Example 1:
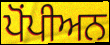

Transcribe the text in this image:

ਪੋਂਪੀਅਨ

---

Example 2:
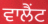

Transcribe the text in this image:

ਵਾਲੈਂਟ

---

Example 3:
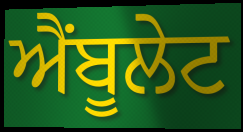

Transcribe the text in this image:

ਐਂਬੂਲੇਟ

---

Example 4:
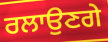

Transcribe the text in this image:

ਰਲਾਉਣਗੇ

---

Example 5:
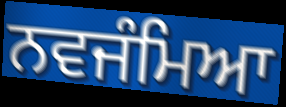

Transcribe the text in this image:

ਨਵਜੰਮਿਆ